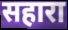
सहारा